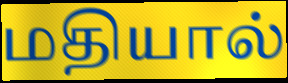
மதியால்